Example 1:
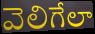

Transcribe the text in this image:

వెలిగేలా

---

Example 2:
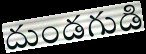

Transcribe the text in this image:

దుండగుడి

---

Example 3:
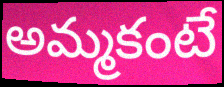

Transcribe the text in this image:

అమ్మకంటే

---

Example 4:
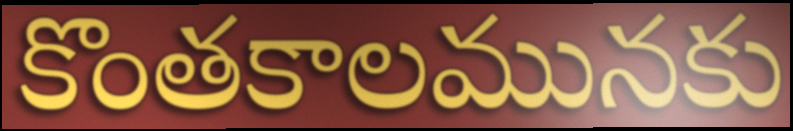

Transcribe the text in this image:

కొంతకాలమునకు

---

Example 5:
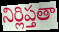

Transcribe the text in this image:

నిర్లిప్తతా